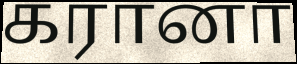
கரானா